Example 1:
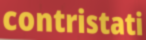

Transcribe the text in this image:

contristati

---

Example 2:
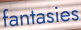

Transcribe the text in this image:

fantasies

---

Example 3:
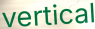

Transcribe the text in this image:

vertical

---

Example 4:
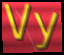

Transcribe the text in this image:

Vy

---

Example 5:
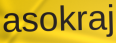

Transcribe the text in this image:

asokraj